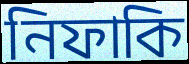
নিফাকি